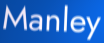
Manley